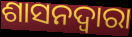
ଶାସନଦ୍ୱାରା